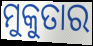
ମୁକୁତାର